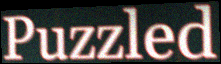
Puzzled